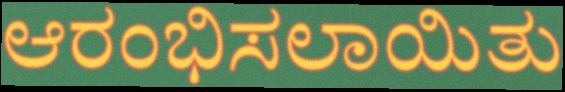
ಆರಂಭಿಸಲಾಯಿತು